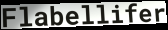
Flabellifer